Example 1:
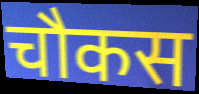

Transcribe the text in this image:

चौकस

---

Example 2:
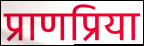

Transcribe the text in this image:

प्राणप्रिया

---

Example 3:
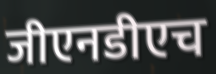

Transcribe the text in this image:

जीएनडीएच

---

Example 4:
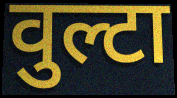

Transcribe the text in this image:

वुल्टा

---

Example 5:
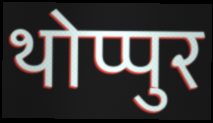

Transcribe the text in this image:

थोप्पुर